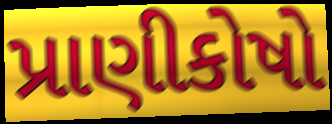
પ્રાણીકોષો